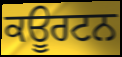
ਕਊਰਟਨ